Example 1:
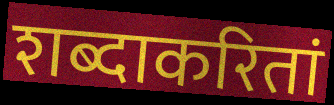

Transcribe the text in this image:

शब्दाकरितां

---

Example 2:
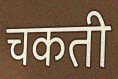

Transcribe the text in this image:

चकती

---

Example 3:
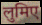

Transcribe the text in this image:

लुमिए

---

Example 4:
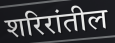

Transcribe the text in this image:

शरिरांतील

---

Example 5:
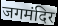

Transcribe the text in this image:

जगमंदिर